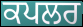
ਕਪਲਰ